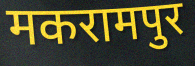
मकरामपुर